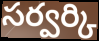
సర్వర్కి